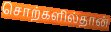
சொற்களில்தான்